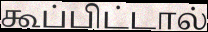
கூப்பிட்டால்